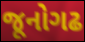
જૂનોગઢ